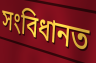
সংবিধানত